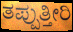
ತಪ್ಪುತ್ತೀರಿ